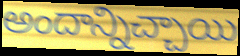
అందాన్నిచ్చాయి